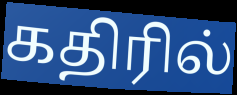
கதிரில்